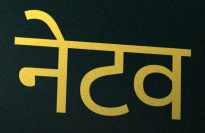
नेटव